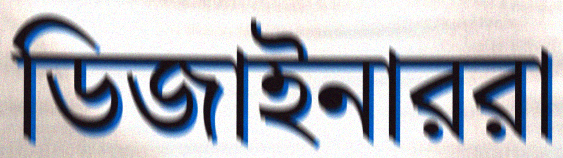
ডিজাইনাররা